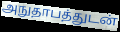
அநுதாபத்துடன்